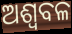
ଅଶ୍ୱବଳ